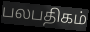
பலபதிகம்